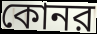
কোনর